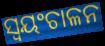
ସ୍ବୟଂଚାଳନ